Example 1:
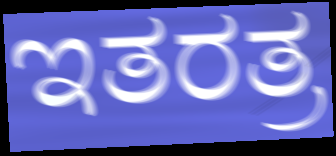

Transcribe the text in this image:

ಇತರತ್ರ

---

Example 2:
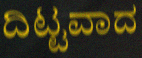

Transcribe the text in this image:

ದಿಟ್ಟವಾದ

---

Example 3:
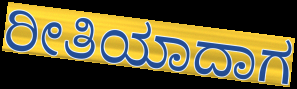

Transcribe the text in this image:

ರೀತಿಯಾದಾಗ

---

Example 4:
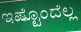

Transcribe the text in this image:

ಇಷ್ಟೊಂದೆಲ್ಲ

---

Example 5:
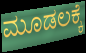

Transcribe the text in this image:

ಮೂಡಲಕ್ಕೆ